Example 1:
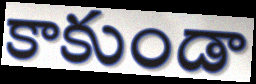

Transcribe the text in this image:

కాకుండా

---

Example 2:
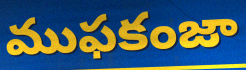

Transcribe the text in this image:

ముఫకంజా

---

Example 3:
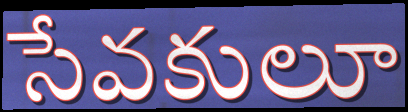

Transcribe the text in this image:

సేవకులూ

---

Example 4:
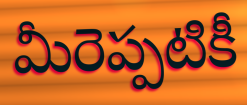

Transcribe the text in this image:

మీరెప్పటికీ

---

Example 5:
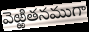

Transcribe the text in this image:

వెఱ్ఱితనముగా